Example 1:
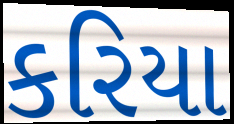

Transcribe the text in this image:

કરિયા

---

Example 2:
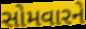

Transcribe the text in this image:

સોમવારને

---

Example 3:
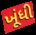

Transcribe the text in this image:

ખૂંધી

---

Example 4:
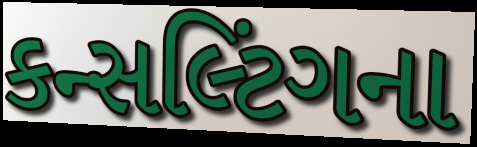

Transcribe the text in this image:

કન્સલ્ટિંગના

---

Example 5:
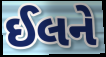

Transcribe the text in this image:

ઈલને